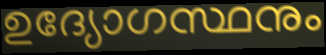
ഉദ്യോഗസ്ഥനും